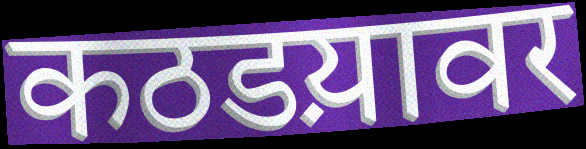
कठडय़ावर